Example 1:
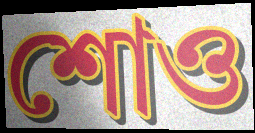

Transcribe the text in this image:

শোও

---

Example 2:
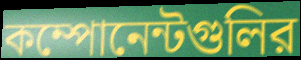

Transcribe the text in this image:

কম্পোনেন্টগুলির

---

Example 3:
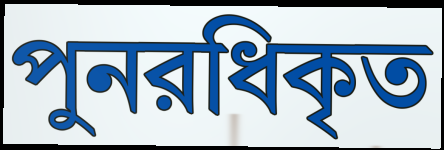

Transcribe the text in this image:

পুনরধিকৃত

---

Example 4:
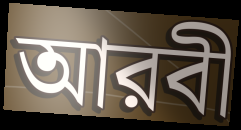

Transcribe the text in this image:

আরবী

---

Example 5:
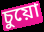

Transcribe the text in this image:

চুয়ো